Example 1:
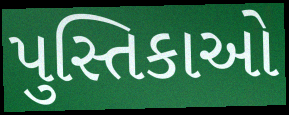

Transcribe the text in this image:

પુસ્તિકાઓ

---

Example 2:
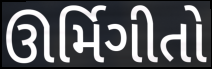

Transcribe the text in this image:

ઊર્મિગીતો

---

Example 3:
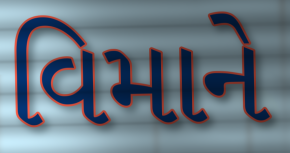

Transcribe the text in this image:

વિમાને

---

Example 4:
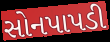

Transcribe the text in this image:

સોનપાપડી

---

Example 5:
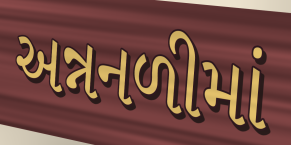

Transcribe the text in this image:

અન્નનળીમાં